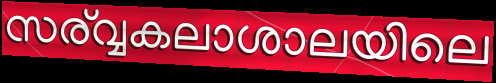
സര്വ്വകലാശാലയിലെ